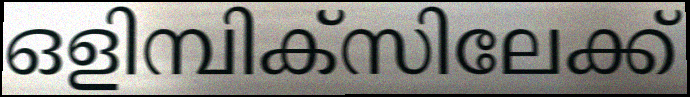
ഒളിമ്പിക്സിലേക്ക്